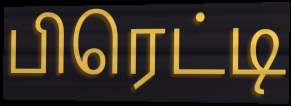
பிரெட்டி